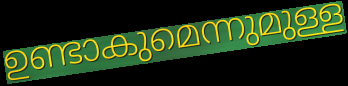
ഉണ്ടാകുമെന്നുമുള്ള